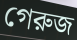
গেরুজ